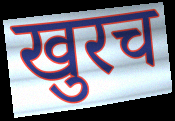
खुरच